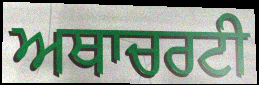
ਅਥਾਚਰਟੀ